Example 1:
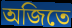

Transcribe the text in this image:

অজিতে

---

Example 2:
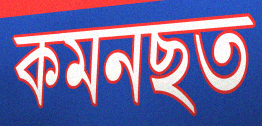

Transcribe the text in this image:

কমনছত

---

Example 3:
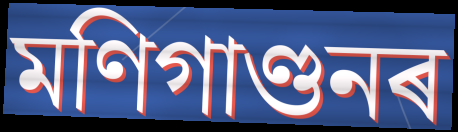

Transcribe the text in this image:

মণিগাণ্ডনৰ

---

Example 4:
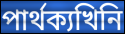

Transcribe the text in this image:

পাৰ্থক্যখিনি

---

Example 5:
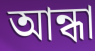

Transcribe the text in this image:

আন্ধা